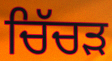
ਚਿੱਚੜ